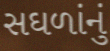
સઘળાંનું